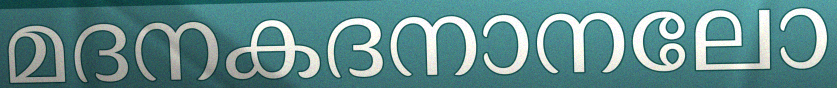
മദനകദനാനലോ